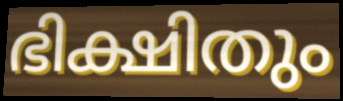
ഭിക്ഷിതും